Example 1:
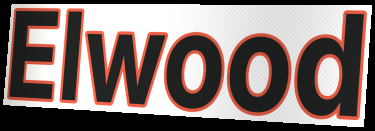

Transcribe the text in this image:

Elwood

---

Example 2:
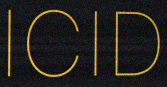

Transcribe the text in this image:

ICID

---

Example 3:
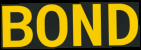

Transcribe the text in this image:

BOND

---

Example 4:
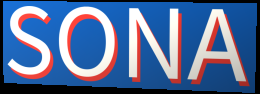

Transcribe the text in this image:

SONA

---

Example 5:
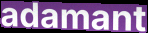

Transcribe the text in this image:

adamant